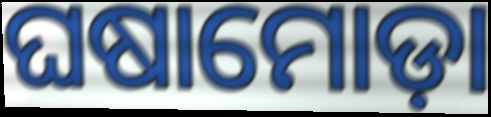
ଘଷାମୋଡ଼ା